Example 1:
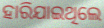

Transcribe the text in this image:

ହାରିଯାଇଥିଲେ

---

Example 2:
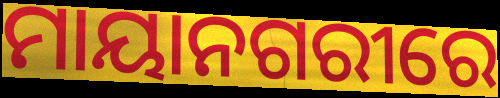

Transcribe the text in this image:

ମାୟାନଗରୀରେ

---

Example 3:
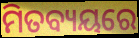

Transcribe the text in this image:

ମିତବ୍ୟୟରେ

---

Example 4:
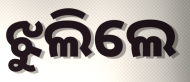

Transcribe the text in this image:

ଝୁଲିଲେ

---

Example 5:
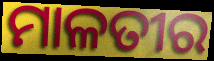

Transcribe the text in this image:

ମାଳତୀର